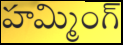
హమ్మింగ్